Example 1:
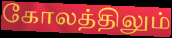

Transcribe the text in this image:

கோலத்திலும்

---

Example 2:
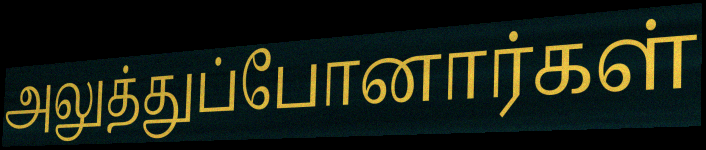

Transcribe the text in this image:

அலுத்துப்போனார்கள்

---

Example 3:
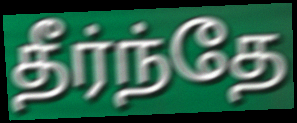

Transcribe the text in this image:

தீர்ந்தே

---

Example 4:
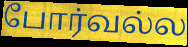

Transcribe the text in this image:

போர்வல்ல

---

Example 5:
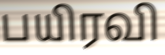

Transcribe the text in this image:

பயிரவி